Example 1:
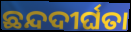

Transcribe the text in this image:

ଛନ୍ଦଦୀର୍ଘତା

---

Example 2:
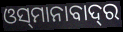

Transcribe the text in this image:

ଓସ୍‌ମାନାବାଦ୍‌ର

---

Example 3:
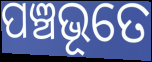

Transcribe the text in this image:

ପଞ୍ଚଭୂତେ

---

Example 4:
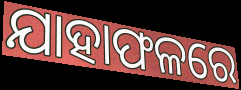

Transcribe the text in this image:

ଯାହାଫଳରେ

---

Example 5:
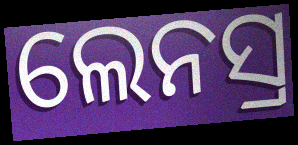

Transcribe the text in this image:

ଲେନସ୍ର